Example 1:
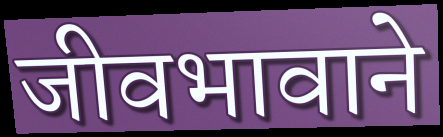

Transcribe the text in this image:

जीवभावाने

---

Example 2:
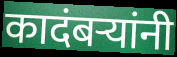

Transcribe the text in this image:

कादंबऱ्यांनी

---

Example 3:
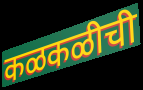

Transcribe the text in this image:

कळकळीची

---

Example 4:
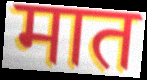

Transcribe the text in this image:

मात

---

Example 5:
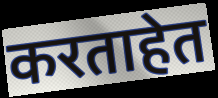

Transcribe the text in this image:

करताहेत